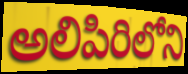
అలిపిరిలోని